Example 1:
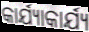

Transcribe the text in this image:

କାର୍ଯ୍ୟାକାର୍ଯ୍ୟ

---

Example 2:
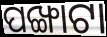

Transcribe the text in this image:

ପଙ୍ଖାଟା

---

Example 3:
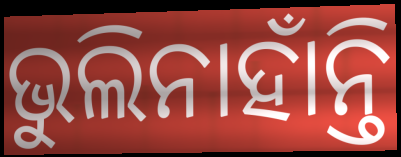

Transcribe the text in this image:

ଭୁଲିନାହାଁନ୍ତି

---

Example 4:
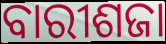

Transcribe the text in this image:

ବାରୀଶଜା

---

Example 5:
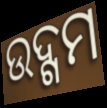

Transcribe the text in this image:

ଉଦ୍ଗମ